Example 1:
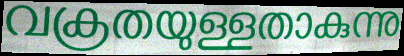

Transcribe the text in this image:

വക്രതയുള്ളതാകുന്നു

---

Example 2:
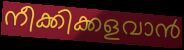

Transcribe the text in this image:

നീക്കിക്കളവാൻ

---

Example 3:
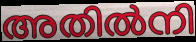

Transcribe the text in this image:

അതിൽനി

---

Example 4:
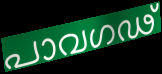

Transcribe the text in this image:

പാവഗഢ്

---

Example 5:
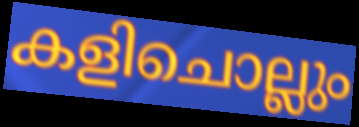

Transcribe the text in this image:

കളിചൊല്ലും